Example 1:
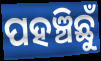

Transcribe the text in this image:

ପହଞ୍ଚିଛୁଁ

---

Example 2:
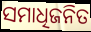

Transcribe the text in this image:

ସମାଧିଜନିତ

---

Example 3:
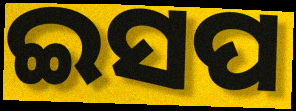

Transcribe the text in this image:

ଇସପ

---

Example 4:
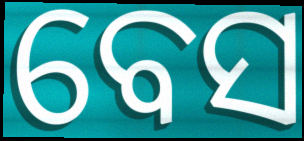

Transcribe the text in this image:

ବେସ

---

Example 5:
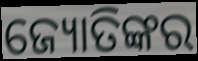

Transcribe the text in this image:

ଜ୍ୟୋତିଙ୍କର